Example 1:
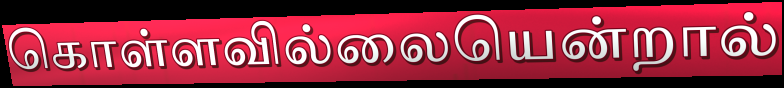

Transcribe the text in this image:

கொள்ளவில்லையென்றால்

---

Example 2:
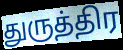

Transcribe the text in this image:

துருத்திர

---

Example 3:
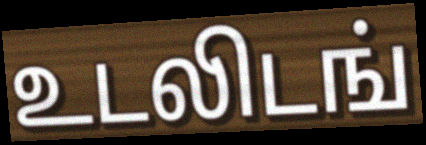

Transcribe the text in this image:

உடலிடங்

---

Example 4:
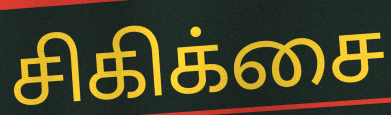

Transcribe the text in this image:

சிகிக்சை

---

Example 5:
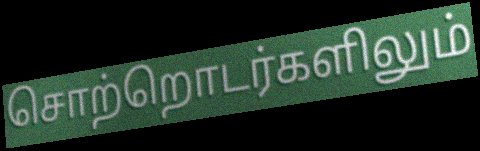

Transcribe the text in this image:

சொற்றொடர்களிலும்